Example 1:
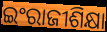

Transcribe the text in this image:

ଇଂରାଜୀଶିକ୍ଷା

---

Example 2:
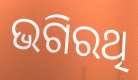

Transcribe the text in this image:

ଭଗିରଥି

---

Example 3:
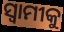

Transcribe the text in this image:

ସ୍ୱାମୀକୁ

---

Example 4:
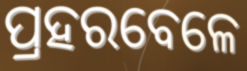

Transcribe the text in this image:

ପ୍ରହରବେଳେ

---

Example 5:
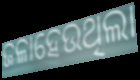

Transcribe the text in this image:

ଜଳାହେଉଥିଲା